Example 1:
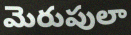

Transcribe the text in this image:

మెరుపులా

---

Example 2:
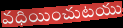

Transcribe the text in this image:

వధియించుటయు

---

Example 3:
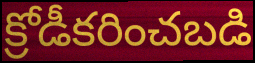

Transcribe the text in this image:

క్రోడీకరించబడి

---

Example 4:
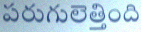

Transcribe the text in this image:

పరుగులెత్తింది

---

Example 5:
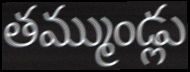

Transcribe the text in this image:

తమ్ముండ్లు